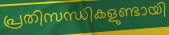
പ്രതിസന്ധികളുണ്ടായി